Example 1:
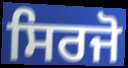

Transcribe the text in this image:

ਸਿਰਜੋ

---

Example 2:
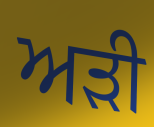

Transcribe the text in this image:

ਅੜੀ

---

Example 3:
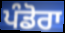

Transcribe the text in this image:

ਪੰਡੋਰਾ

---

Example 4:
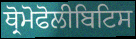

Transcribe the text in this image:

ਥ੍ਰੋਮੋਫੋਲੀਬਿਟਿਸ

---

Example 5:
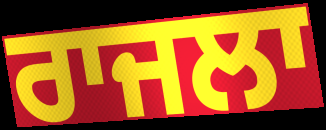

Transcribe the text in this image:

ਰਾਜਲਾ